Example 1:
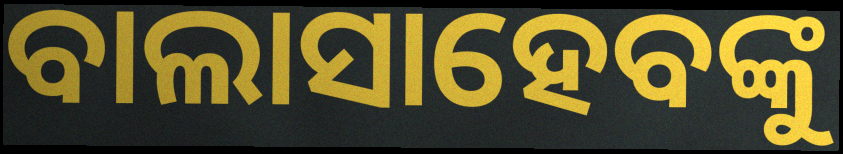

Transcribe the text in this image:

ବାଲାସାହେବଙ୍କୁ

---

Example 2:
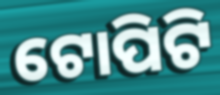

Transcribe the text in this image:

ଟୋପିଟି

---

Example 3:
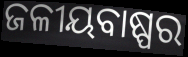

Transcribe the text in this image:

ଜଳୀୟବାଷ୍ପର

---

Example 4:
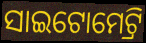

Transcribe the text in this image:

ସାଇଟୋମେଟ୍ରି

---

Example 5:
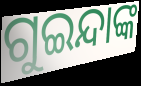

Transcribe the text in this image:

ଗୁଇନ୍ଦାଙ୍କ